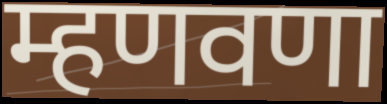
म्हणवणा